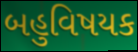
બહુવિષયક